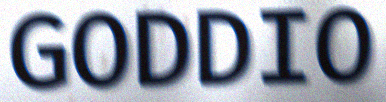
GODDIO